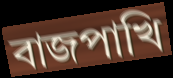
বাজপাখি